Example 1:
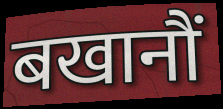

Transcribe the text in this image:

बखानौं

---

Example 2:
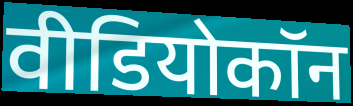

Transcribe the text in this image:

वीडियोकॉन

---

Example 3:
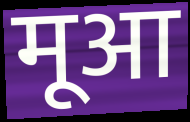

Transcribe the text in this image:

मूआ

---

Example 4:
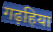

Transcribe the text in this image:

गढ़हिया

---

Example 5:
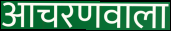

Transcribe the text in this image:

आचरणवाला